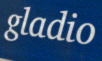
gladio